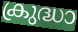
ക്രുദ്ധാ